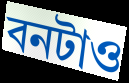
বনটাও